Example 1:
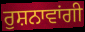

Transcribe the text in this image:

ਰੁਸ਼ਨਾਵਾਂਗੀ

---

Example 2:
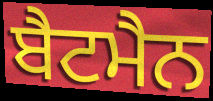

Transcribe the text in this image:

ਬੈਟਮੈਨ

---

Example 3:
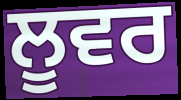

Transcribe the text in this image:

ਲੂਵਰ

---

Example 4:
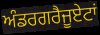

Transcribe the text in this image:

ਅੰਡਰਗਰੈਜੂਏਟਾਂ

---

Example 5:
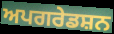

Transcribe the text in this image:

ਅਪਗਰੇਡਸ਼ਨ